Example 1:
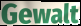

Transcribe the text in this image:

Gewalt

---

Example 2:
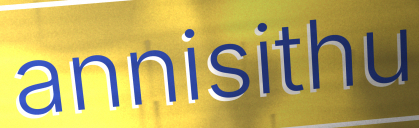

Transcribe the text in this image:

annisithu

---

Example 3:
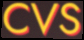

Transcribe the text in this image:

CVS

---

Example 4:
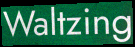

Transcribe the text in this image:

Waltzing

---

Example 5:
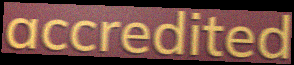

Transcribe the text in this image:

accredited